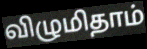
விழுமிதாம்